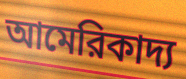
আমেরিকাদ্য